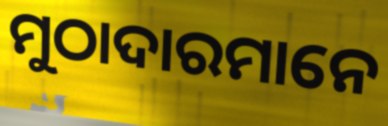
ମୁଠାଦାରମାନେ